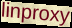
linproxy